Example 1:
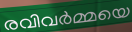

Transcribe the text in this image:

രവിവർമ്മയെ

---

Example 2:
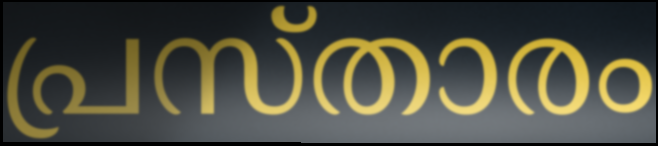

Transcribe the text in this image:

പ്രസ്താരം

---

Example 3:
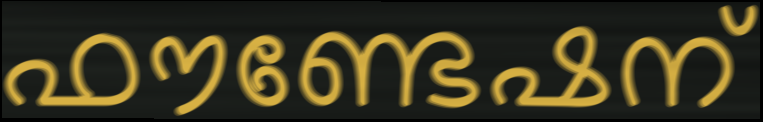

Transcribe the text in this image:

ഫൗണ്ടേഷന്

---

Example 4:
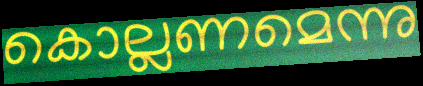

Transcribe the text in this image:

കൊല്ലണമെന്നു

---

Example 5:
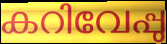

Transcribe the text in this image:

കറിവേപ്പു